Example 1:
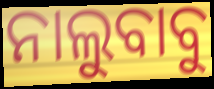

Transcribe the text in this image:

ନାଲୁବାବୁ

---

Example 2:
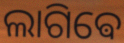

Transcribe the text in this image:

ଲାଗିଵେ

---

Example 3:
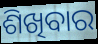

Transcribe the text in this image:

ଶିଖିବାର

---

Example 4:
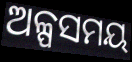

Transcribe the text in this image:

ଅଳ୍ପସମୟ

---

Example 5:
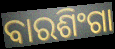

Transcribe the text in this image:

ବାରଶିଂଗା